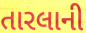
તારલાની